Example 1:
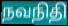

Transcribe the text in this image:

நவநிதி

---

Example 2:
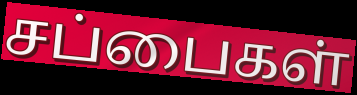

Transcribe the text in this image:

சப்பைகள்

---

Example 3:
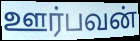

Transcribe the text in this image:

ஊர்பவன்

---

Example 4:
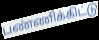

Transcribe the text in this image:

பண்ணிக்கிட்டு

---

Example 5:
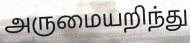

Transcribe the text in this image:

அருமையறிந்து